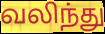
வலிந்து